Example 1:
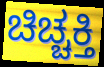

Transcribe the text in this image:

ಚಿಚ್ಚಕ್ತಿ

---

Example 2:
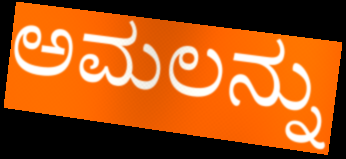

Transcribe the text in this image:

ಅಮಲನ್ನು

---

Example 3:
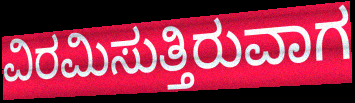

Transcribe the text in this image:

ವಿರಮಿಸುತ್ತಿರುವಾಗ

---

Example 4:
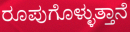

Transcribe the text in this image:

ರೂಪುಗೊಳ್ಳುತ್ತಾನೆ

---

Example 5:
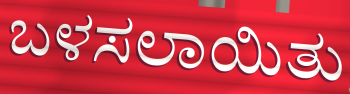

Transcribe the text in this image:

ಬಳಸಲಾಯಿತು